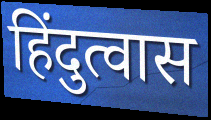
हिंदुत्वास